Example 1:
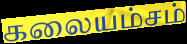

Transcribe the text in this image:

கலையம்சம்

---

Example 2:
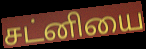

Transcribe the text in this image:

சட்னியை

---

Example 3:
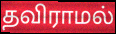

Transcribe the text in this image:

தவிராமல்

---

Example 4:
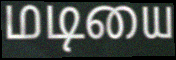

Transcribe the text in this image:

மடியை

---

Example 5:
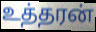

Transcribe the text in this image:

உத்தரன்